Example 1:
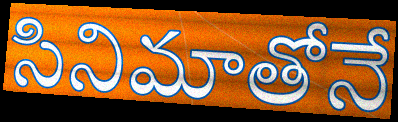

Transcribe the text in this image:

సినిమాతోనే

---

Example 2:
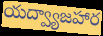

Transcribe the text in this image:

యద్వ్యాజహార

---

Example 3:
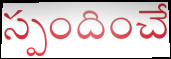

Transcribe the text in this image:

స్పందించే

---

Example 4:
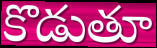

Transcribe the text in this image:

కొడుతూ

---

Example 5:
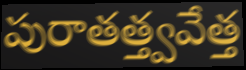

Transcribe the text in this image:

పురాతత్త్వవేత్త